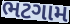
ભટગામ